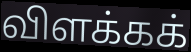
விளக்கக்